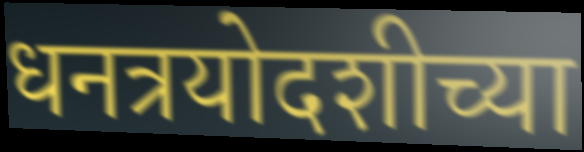
धनत्रयोदशीच्या